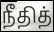
நீதித்